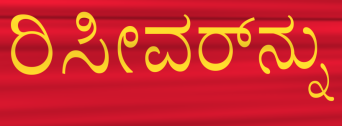
ರಿಸೀವರ್‌ನ್ನು